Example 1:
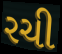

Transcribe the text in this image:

રચી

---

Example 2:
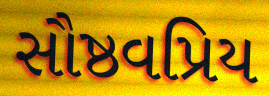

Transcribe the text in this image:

સૌષ્ઠવપ્રિય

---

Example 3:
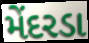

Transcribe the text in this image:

મેંદરડા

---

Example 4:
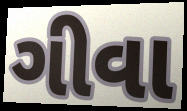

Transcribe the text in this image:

ગીવા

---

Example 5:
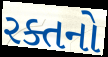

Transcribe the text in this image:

રક્તનો